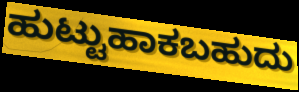
ಹುಟ್ಟುಹಾಕಬಹುದು